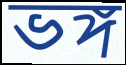
ভঙ্গ